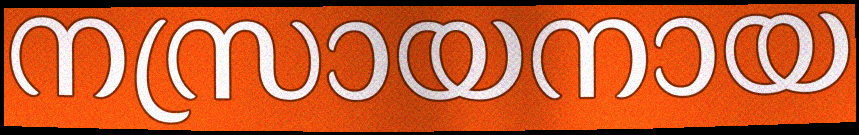
നസ്രായനായ